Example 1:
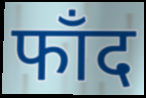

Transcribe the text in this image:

फाँद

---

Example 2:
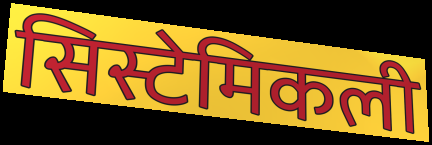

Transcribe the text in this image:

सिस्टेमिकली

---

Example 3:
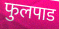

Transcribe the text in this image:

फुलपाड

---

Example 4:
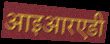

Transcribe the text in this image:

आइआरएडी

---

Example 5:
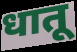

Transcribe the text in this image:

धातू